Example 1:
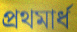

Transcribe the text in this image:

প্রথমার্ধ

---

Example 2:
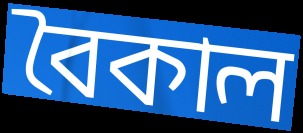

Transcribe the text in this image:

বৈকাল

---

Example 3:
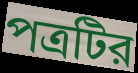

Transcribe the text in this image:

পত্রটির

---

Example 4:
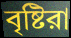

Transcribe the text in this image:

বৃষ্টিরা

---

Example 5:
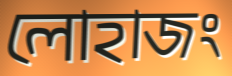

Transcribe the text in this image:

লোহাজং